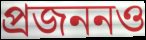
প্রজননও